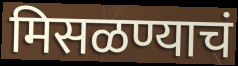
मिसळण्याचं